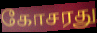
கோசரது